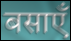
बसाएँ